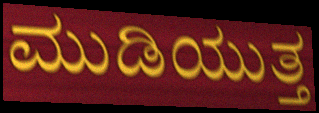
ಮುಡಿಯುತ್ತ